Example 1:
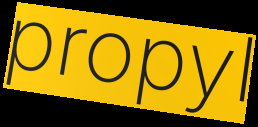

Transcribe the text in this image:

propyl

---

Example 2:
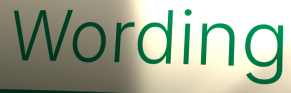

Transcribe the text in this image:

Wording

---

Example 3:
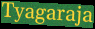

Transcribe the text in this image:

Tyagaraja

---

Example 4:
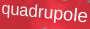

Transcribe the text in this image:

quadrupole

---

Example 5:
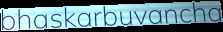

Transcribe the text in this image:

bhaskarbuvancha